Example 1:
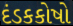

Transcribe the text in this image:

દંડકકોષો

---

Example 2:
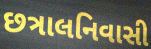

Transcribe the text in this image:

છત્રાલનિવાસી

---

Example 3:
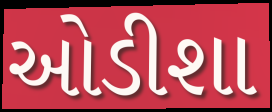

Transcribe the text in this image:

ઓડીશા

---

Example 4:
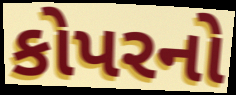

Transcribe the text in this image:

કોપરનો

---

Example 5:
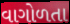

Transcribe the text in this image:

વાગોળતા